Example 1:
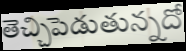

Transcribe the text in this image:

తెచ్చిపెడుతున్నదో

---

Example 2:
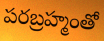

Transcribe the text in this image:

పరబ్రహ్మంతో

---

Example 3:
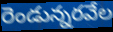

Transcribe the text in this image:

రెండున్నరవేల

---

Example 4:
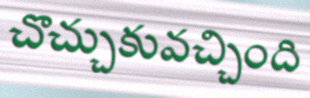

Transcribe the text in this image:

చొచ్చుకువచ్చింది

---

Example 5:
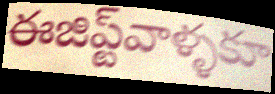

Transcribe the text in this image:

ఈజిప్ట్‌వాళ్ళకూ